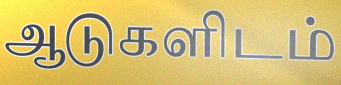
ஆடுகளிடம்